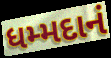
ધમ્મદાનં